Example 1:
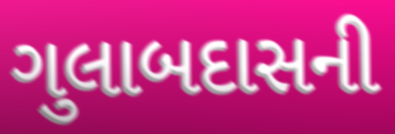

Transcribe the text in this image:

ગુલાબદાસની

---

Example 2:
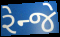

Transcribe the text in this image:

રેન્જે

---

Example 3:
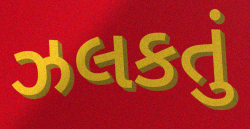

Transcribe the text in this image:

ઝલકતું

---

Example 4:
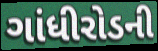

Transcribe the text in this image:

ગાંધીરોડની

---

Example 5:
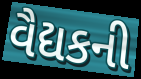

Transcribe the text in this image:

વૈદ્યકની